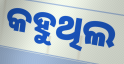
କହୁଥିଲ